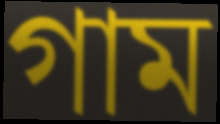
গাম